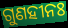
ଗୁଣହୀନଃ